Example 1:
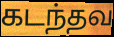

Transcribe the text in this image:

கடந்தவ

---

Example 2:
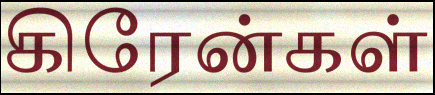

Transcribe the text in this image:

கிரேன்கள்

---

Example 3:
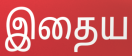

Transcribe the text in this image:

இதைய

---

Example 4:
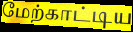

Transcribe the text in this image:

மேற்காட்டிய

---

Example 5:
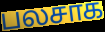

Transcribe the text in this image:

பலசாக